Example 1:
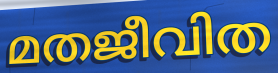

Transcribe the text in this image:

മതജീവിത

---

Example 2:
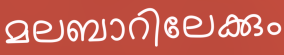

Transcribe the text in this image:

മലബാറിലേക്കും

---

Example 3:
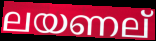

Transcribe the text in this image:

ലയണല്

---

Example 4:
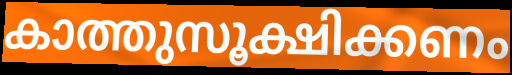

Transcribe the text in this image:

കാത്തുസൂക്ഷിക്കണം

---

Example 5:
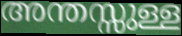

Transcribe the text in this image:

അന്തസ്സുള്ള